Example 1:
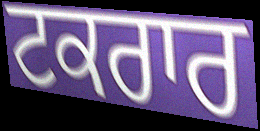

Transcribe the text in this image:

ਟਕਰਾਰ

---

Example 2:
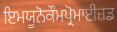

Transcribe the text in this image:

ਇਮਯੂਨੋਕੌਮਪ੍ਰੋਮਾਈਜ਼ਡ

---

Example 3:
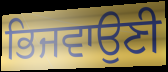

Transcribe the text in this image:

ਭਿਜਵਾਉਣੀ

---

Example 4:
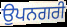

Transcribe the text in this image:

ਉਪਨਗਰੀ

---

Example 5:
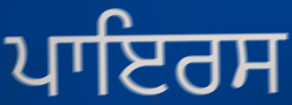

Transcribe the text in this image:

ਪਾਇਰਸ